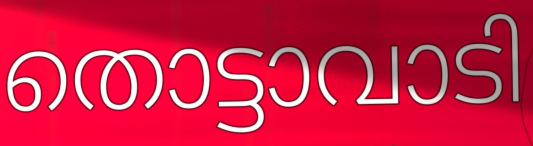
തൊട്ടാവാടി